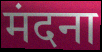
मंदना